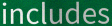
includes